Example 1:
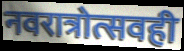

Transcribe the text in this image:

नवरात्रोत्सवही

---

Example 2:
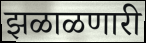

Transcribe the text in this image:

झळाळणारी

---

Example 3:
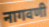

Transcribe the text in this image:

नागवणी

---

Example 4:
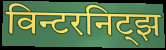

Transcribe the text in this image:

विन्टरनिट्झ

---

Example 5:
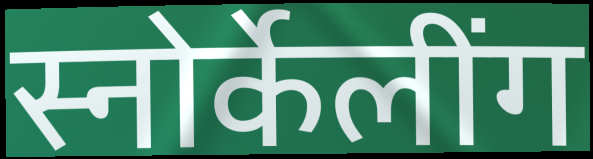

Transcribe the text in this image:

स्नोर्केलींग